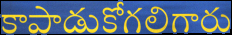
కాపాడుకోగలిగారు